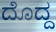
ದೊದ್ದ